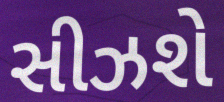
સીઝશે